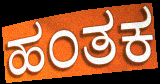
ಹಂತಕ